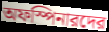
অফস্পিনারদের